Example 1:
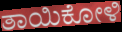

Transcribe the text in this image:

ತಾಯಿಕೋಳಿ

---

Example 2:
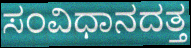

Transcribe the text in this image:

ಸಂವಿಧಾನದತ್ತ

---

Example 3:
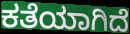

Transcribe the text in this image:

ಕತೆಯಾಗಿದೆ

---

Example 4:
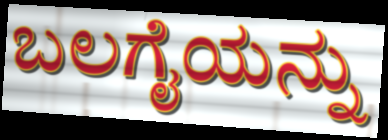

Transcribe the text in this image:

ಬಲಗೈಯನ್ನು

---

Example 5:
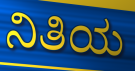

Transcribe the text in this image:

ನಿತಿಯ